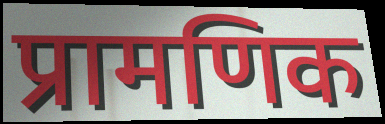
प्रामणिक